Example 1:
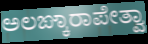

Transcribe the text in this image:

ಅಲಙ್ಕಾರಾಪೇತ್ವಾ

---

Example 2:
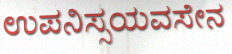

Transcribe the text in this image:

ಉಪನಿಸ್ಸಯವಸೇನ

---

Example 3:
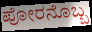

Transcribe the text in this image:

ಪೋರನೊಬ್ಬ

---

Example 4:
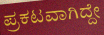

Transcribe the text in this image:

ಪ್ರಕಟವಾಗಿದ್ದೇ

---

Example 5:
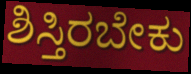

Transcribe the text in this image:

ಶಿಸ್ತಿರಬೇಕು